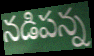
నడిపన్న